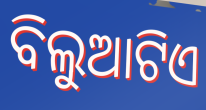
ବିଲୁଆଟିଏ